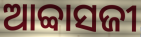
ଆବ୍ବାସଜୀ